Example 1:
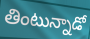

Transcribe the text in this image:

తింటున్నాడో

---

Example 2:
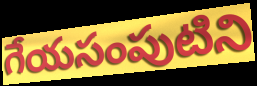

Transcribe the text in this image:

గేయసంపుటిని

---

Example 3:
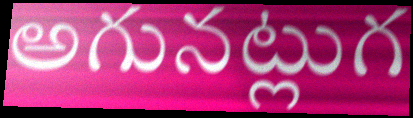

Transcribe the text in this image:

అగునట్లుగ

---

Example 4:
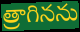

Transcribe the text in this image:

త్రాగినను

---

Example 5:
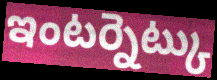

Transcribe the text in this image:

ఇంటర్నెట్కు